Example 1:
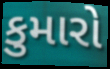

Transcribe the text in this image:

કુમારો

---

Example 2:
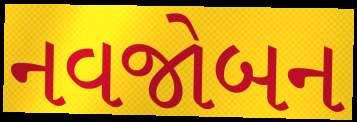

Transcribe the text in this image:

નવજોબન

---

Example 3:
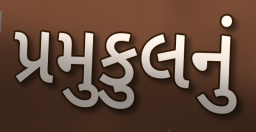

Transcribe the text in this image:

પ્રમુકુલનું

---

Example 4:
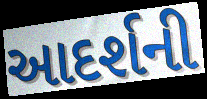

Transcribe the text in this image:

આદર્શની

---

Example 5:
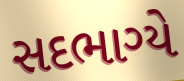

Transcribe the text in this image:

સદભાગ્યે